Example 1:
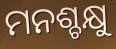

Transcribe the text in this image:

ମନଶ୍ଚକ୍ଷୁ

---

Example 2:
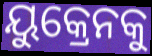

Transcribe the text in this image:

ୟୁକ୍ରେନକୁ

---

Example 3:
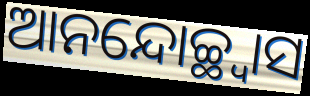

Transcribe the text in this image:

ଆନନ୍ଦୋଚ୍ଛ୍ୱାସ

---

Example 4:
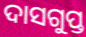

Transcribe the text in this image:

ଦାସଗୁପ୍ତ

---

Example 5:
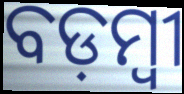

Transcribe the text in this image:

ବଡ଼ମ୍ବୀ